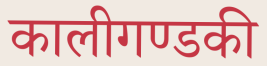
कालीगण्डकी